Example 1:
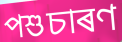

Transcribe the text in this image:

পশুচাৰণ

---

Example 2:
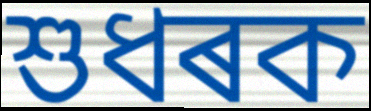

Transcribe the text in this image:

শুধৰক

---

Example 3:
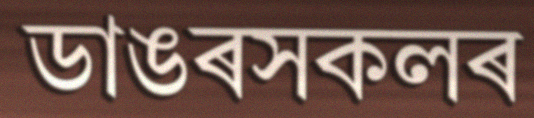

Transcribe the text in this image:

ডাঙৰসকলৰ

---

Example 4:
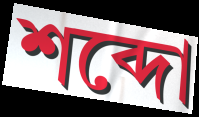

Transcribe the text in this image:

শব্দো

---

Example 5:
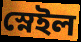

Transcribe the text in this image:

স্নেইল